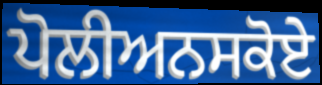
ਪੋਲੀਅਨਸਕੋਏ